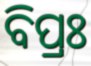
ବିପ୍ରଃ